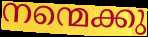
നന്മെക്കു